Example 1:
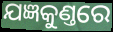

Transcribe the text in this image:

ଯଜ୍ଞକୁଣ୍ତରେ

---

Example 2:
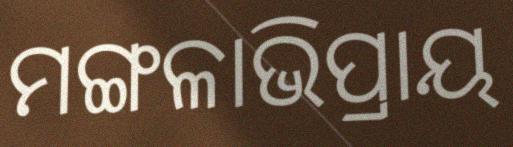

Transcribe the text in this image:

ମଙ୍ଗଳାଭିପ୍ରାୟ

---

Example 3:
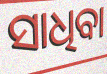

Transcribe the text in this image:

ସାଧିବା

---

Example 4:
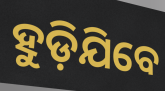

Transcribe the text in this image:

ହୁଡ଼ିଯିବେ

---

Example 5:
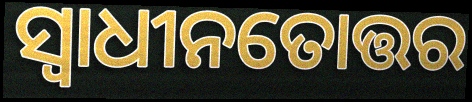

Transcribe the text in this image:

ସ୍ୱାଧୀନତୋତ୍ତର